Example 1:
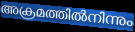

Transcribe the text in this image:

അക്രമത്തിൽനിന്നും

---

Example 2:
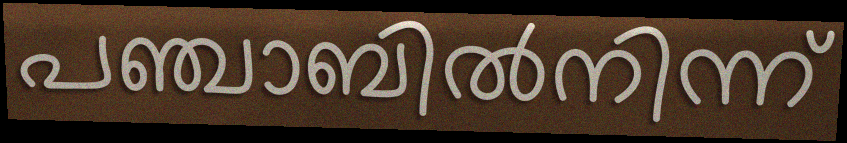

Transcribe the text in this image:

പഞ്ചാബിൽനിന്ന്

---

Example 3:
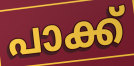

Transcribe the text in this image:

പാക്ക്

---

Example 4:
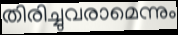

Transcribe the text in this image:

തിരിച്ചുവരാമെന്നും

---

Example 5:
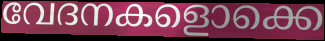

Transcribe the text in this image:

വേദനകളൊക്കെ